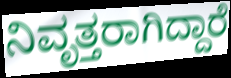
ನಿವೃತ್ತರಾಗಿದ್ದಾರೆ